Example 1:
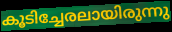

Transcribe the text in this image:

കൂടിച്ചേരലായിരുന്നു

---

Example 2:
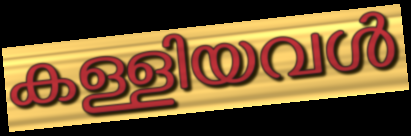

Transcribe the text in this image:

കള്ളിയവൾ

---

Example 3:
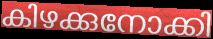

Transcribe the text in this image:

കിഴക്കുനോക്കി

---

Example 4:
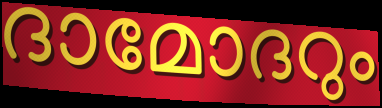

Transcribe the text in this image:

ദാമോദറും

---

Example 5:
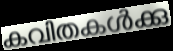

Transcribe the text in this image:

കവിതകൾക്കു